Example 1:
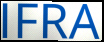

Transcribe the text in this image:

IFRA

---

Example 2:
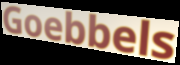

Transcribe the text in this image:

Goebbels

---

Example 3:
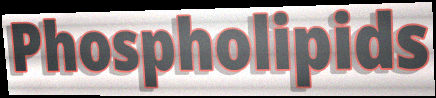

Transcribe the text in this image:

Phospholipids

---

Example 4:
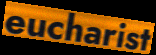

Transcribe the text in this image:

eucharist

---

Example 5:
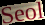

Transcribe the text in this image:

Seol